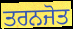
ਤਰਨਜੋਤ